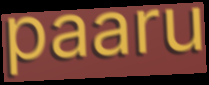
paaru